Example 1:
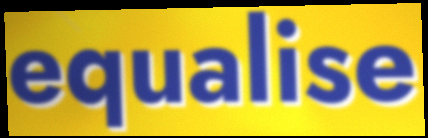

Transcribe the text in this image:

equalise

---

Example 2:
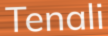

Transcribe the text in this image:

Tenali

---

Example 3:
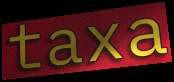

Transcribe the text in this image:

taxa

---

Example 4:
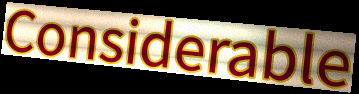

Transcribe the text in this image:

Considerable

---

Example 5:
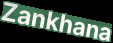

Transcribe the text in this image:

Zankhana